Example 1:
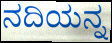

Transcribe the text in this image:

ನದಿಯನ್ನ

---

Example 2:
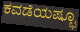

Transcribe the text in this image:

ಕವಡೆಯಷ್ಟೂ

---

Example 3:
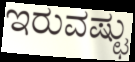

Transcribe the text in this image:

ಇರುವಷ್ಟು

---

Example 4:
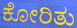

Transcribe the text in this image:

ಕೋರಿತು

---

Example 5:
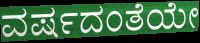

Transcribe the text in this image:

ವರ್ಷದಂತೆಯೇ